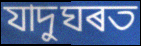
যাদুঘৰত